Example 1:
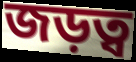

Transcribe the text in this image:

জড়ত্ব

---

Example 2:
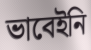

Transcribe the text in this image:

ভাবেইনি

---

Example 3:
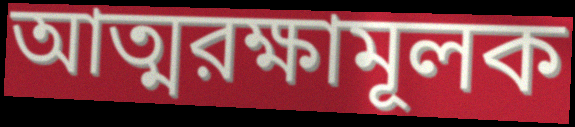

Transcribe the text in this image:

আত্মরক্ষামূলক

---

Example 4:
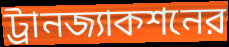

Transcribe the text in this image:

ট্রানজ্যাকশনের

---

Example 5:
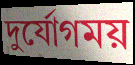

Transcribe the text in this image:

দুর্যোগময়